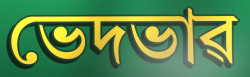
ভেদভাৱ